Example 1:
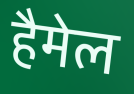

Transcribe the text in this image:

हैमेल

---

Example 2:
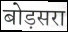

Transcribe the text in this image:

बोड़सरा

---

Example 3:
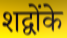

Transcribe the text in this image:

शद्वोंके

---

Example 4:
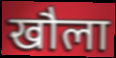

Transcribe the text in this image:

खौला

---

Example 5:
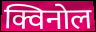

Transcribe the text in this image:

क्विनोल